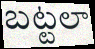
బట్టలా